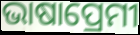
ଭାଷାପ୍ରେମୀ